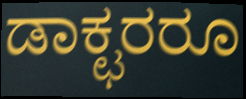
ಡಾಕ್ಟರರೂ